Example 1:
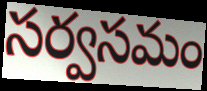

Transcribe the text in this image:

సర్వసమం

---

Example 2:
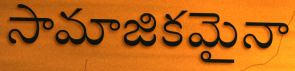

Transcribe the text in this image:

సామాజికమైనా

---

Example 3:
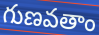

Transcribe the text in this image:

గుణవతాం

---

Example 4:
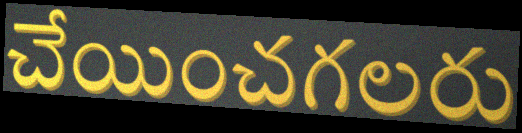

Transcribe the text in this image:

చేయించగలరు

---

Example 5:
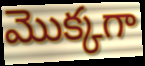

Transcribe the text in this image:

మొక్కగా